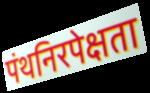
पंथनिरपेक्षता